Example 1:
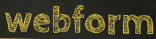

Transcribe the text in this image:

webform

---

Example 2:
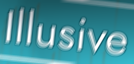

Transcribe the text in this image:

Illusive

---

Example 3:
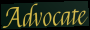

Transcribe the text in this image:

Advocate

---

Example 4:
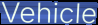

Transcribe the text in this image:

Vehicle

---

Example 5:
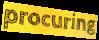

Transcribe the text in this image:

procuring